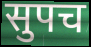
सुपच